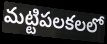
మట్టిపలకలలో